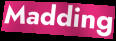
Madding